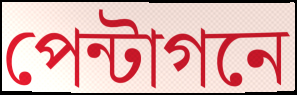
পেন্টাগনে